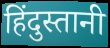
हिंदुस्तानी